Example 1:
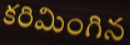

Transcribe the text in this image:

కరిమింగిన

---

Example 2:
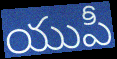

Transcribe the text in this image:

యుపీ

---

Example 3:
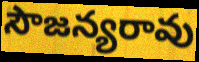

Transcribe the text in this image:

సౌజన్యరావు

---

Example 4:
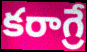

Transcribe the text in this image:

కరాగ్రే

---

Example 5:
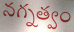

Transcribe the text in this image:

నగ్నత్వం